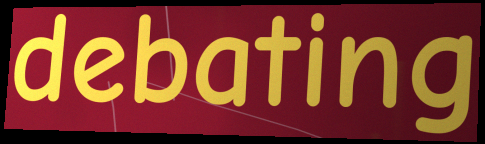
debating